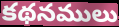
కథనములు